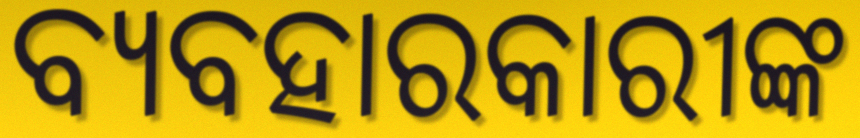
ବ୍ୟବହାରକାରୀଙ୍କ